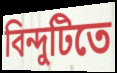
বিন্দুটিতে